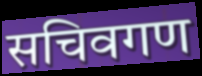
सचिवगण